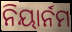
ନିୟାର୍ନମ